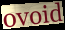
ovoid